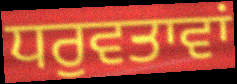
ਧਰੁਵਤਾਵਾਂ